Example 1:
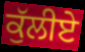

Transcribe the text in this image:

ਕੁੱਲੀਏ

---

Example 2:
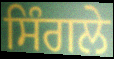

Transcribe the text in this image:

ਸਿੰਗਲੇ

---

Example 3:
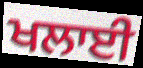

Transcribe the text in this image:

ਖਲਾਈ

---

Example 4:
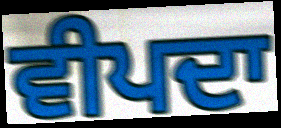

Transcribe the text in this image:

ਵੀਪਦਾ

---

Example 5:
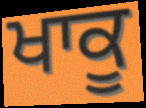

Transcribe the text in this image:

ਖਾਕੂ